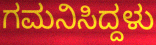
ಗಮನಿಸಿದ್ದಳು